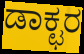
ಡಾಕ್ಟರ